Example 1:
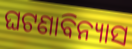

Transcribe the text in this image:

ଘଟଣାବିନ୍ୟାସ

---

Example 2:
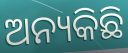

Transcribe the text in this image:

ଅନ୍ୟକିଛି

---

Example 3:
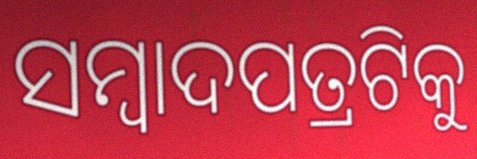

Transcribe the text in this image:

ସମ୍ବାଦପତ୍ରଟିକୁ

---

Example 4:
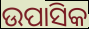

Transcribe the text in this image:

ଉପାସିକ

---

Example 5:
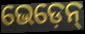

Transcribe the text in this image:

ଭେଡ଼େନ୍